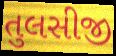
તુલસીજી